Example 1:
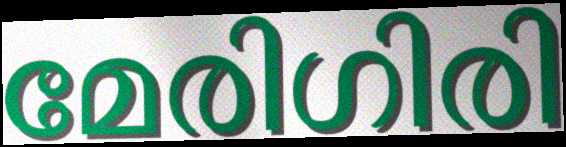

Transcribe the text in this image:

മേരിഗിരി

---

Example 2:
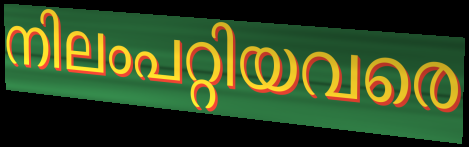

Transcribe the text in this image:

നിലംപറ്റിയവരെ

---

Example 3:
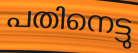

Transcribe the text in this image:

പതിനെട്ടു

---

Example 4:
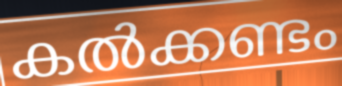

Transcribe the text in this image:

കൽക്കണ്ടം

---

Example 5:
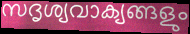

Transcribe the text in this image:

സദൃശ്യവാക്യങ്ങളും